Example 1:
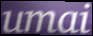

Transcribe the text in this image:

umai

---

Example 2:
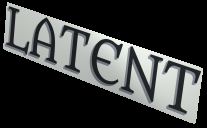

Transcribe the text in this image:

LATENT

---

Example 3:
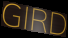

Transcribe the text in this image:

GIRD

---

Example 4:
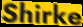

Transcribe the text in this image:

Shirke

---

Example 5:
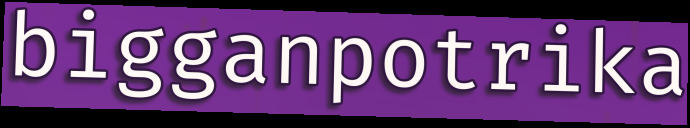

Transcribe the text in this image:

bigganpotrika